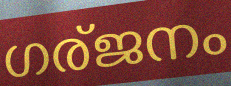
ഗര്ജനം